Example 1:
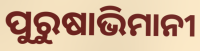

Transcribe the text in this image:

ପୁରୁଷାଭିମାନୀ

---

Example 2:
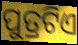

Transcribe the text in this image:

ପୁତ୍ରଟିଏ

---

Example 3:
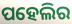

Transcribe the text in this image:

ପହେଲିର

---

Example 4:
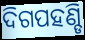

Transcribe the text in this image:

ଦିଗପହଣ୍ଡି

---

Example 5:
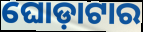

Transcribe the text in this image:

ଘୋଡ଼ାଟାର